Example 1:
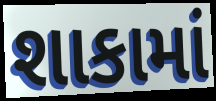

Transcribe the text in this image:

શાકામાં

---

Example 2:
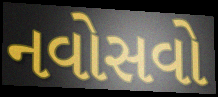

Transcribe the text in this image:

નવોસવો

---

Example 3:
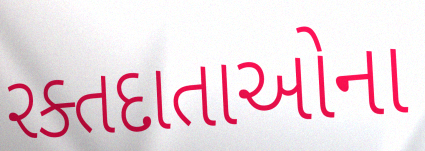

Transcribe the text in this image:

રક્તદાતાઓના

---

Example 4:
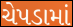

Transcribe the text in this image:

ચેપડામાં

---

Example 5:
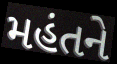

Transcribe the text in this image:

મહંતને